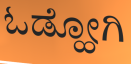
ಓಡ್ಹೋಗಿ